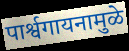
पार्श्वगायनामुळे